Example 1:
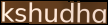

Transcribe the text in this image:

kshudha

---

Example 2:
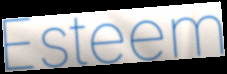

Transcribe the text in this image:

Esteem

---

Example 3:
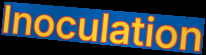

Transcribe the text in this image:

Inoculation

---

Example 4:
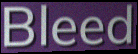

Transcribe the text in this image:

Bleed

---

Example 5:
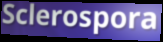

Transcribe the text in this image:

Sclerospora